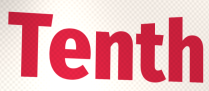
Tenth